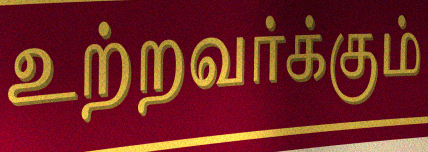
உற்றவர்க்கும்